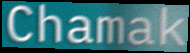
Chamak